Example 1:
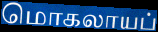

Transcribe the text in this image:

மொகலாயப்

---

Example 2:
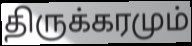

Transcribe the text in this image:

திருக்கரமும்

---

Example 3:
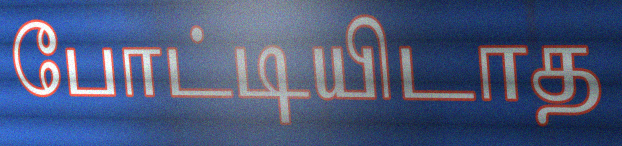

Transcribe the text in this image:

போட்டியிடாத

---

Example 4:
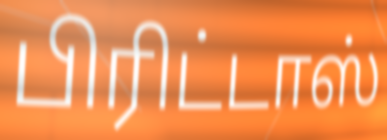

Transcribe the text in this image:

பிரிட்டாஸ்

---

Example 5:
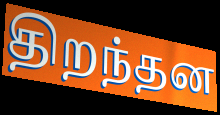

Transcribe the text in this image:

திறந்தன